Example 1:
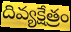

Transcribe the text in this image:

దివ్యక్షేత్రం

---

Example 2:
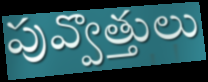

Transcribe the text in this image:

పువ్వొత్తులు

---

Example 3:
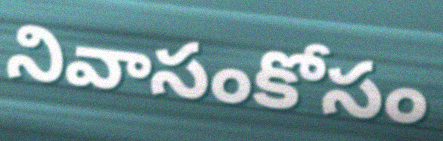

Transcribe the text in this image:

నివాసంకోసం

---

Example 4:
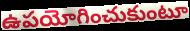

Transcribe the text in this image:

ఉపయోగించుకుంటూ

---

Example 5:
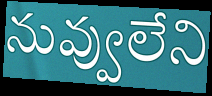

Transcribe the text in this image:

నువ్వులేని